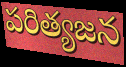
పరిత్యజన